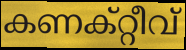
കണക്റ്റീവ്